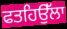
ਫਤਹਿਉੱਲਾ